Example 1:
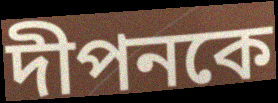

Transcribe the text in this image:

দীপনকে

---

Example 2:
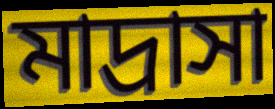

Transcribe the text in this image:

মাদ্রাসা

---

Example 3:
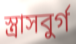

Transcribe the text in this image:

স্ত্রাসবুর্গ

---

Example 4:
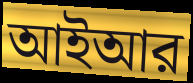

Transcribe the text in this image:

আইআর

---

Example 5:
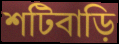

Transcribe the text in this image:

শটিবাড়ি